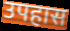
उपहास